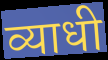
व्याधी